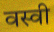
वस्वी